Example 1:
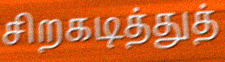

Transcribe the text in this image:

சிறகடித்துத்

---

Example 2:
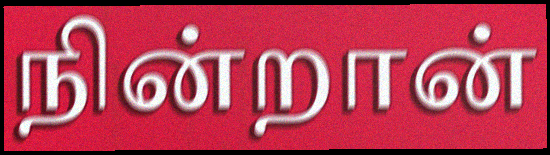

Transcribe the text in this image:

நின்றான்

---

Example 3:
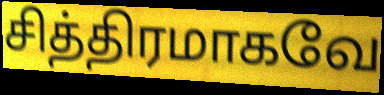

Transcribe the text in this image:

சித்திரமாகவே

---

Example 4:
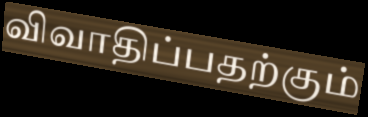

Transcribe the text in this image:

விவாதிப்பதற்கும்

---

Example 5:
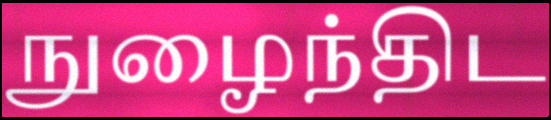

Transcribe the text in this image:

நுழைந்திட